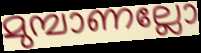
മുമ്പാണല്ലോ